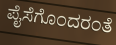
ಪೈಸೆಗೊಂದರಂತೆ